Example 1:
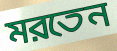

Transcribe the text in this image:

মরতেন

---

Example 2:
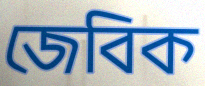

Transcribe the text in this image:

জেবিক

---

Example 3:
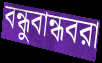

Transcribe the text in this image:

বন্ধুবান্ধবরা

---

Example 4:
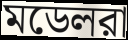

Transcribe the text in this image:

মডেলরা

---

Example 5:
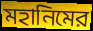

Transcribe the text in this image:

মহানিমের